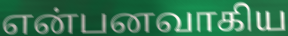
என்பனவாகிய